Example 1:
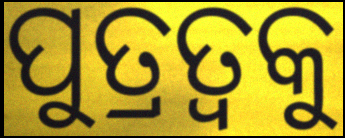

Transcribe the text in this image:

ପୁତ୍ରତ୍ଵକୁ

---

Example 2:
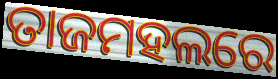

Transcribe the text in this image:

ତାଜମହଲରେ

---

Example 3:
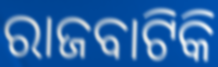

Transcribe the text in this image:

ରାଜବାଟିକି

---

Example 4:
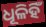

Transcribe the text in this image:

ଧୂଳିହିଁ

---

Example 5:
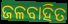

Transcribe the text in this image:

ଜଳବାହିତ